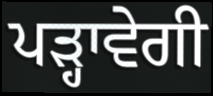
ਪੜ੍ਹਾਵੇਗੀ